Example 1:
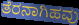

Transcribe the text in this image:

ತೆರನಾಗಿಹವು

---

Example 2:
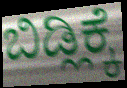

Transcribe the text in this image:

ಬಿಡ್ಲಿಕ್ಕೆ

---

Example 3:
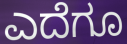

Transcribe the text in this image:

ಎದೆಗೂ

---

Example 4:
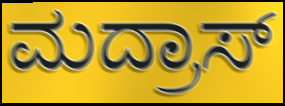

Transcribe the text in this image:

ಮದ್ರಾಸ್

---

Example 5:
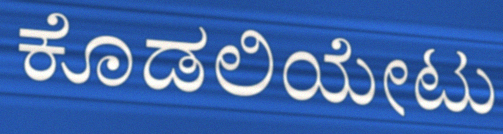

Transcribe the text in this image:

ಕೊಡಲಿಯೇಟು